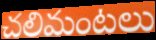
చలిమంటలు